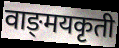
वाङ्‌मयकृती